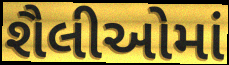
શૈલીઓમાં